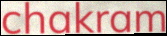
chakram